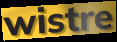
wistre